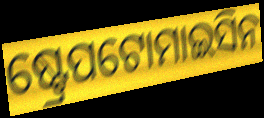
ଷ୍ଟ୍ରେପଟୋମାଇସିନ